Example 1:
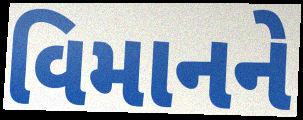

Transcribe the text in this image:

વિમાનને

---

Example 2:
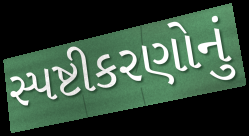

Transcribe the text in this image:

સ્પષ્ટીકરણોનું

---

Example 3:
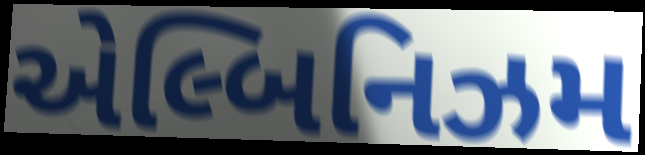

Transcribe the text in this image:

એલ્બિનિઝમ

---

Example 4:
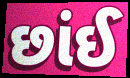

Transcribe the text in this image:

છાંઈ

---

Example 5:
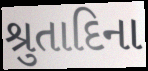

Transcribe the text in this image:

શ્રુતાદિના